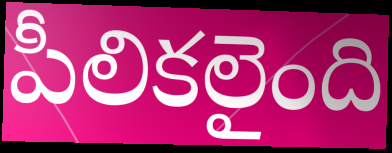
పీలికలైంది